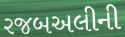
રજબઅલીની